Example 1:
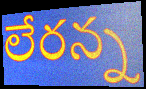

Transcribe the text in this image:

లేరన్న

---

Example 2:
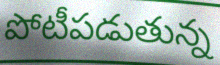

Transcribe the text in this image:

పోటీపడుతున్న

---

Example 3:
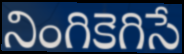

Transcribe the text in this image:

నింగికెగిసే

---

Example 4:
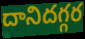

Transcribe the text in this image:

దానిదగ్గర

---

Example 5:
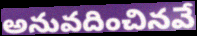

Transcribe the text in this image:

అనువదించినవే